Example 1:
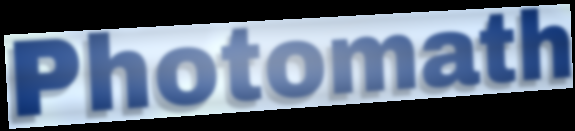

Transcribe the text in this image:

Photomath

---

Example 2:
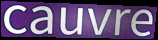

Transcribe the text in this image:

cauvre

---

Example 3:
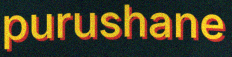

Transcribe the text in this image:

purushane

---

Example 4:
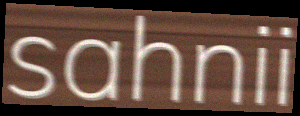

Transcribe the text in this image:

sahnii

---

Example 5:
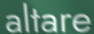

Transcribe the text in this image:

altare